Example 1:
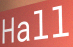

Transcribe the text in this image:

Hall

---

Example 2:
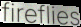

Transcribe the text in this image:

fireflies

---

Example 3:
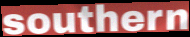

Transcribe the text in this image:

southern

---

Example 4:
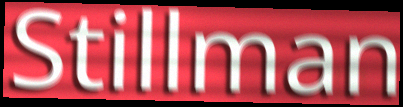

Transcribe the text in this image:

Stillman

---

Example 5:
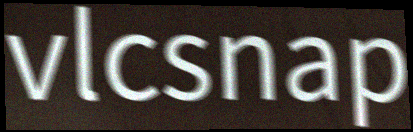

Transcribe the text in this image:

vlcsnap